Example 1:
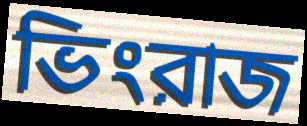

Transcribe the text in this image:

ভিংরাজ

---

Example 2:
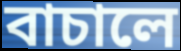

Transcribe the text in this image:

বাচালে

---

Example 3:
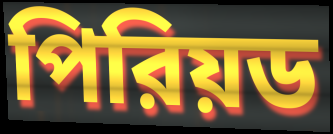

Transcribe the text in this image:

পিরিয়ড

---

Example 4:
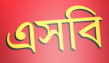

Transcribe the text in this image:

এসবি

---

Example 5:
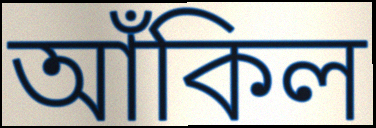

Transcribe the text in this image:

আঁকিল